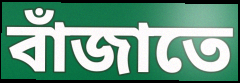
বাঁজাতে